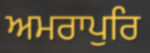
ਅਮਰਾਪੁਰਿ